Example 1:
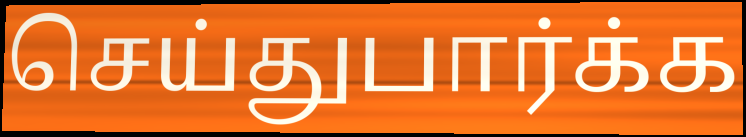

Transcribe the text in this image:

செய்துபார்க்க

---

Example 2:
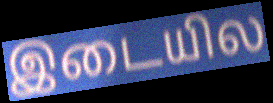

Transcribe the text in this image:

இடையில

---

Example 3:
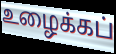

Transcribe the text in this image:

உழைக்கப்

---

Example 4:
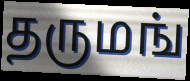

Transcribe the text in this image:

தருமங்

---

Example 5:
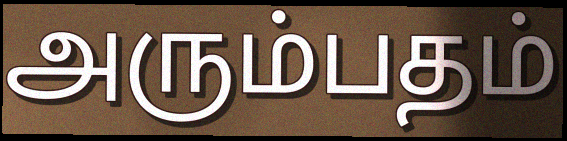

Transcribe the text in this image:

அரும்பதம்